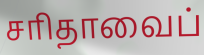
சரிதாவைப்